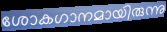
ശോകഗാനമായിരുന്നു